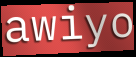
awiyo